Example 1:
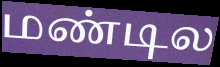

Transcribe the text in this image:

மண்டில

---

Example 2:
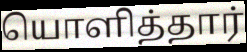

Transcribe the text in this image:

யொளித்தார்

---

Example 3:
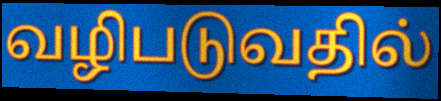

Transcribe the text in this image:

வழிபடுவதில்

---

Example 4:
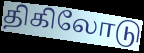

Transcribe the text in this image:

திகிலோடு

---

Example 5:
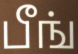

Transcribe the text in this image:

பீங்